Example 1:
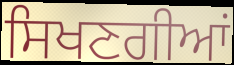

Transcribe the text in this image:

ਸਿਖਣਗੀਆਂ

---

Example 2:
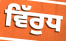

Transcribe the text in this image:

ਵਿੱਰੁਧ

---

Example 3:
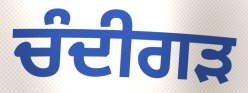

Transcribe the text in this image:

ਚੰਦੀਗੜ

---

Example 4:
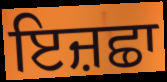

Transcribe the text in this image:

ਇਜ਼ਛਾ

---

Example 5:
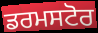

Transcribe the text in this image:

ਡਰਮਸਟੋਰ